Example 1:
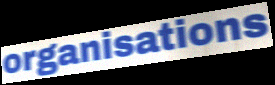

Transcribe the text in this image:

organisations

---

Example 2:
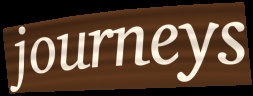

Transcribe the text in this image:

journeys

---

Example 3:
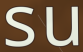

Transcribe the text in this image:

su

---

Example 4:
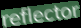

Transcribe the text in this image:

reflector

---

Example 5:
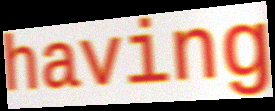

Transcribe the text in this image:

having